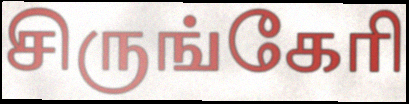
சிருங்கேரி